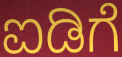
ಐಡಿಗೆ